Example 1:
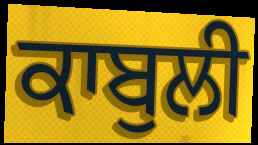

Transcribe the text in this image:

ਕਾਬੁਲੀ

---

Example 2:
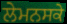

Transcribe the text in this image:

ਲੇਮਨਸਕੇ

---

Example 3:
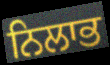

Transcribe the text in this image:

ਨਿਲਾਭ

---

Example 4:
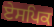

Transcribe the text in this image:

ਏਸਪਿਕ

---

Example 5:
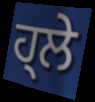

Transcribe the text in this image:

ਹ੍ਲੇ